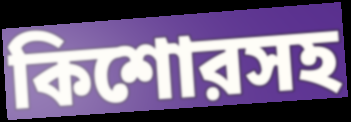
কিশোরসহ